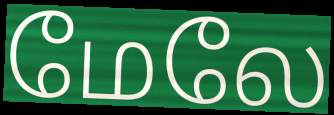
மேலே